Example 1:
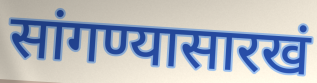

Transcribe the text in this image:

सांगण्यासारखं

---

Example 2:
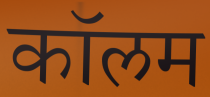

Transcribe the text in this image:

कॉलम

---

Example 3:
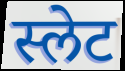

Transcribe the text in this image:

स्लेट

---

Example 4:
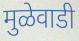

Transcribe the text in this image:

मुळेवाडी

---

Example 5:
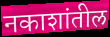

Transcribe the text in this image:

नकाशांतील